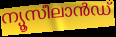
ന്യൂസീലാൻഡ്